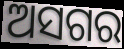
ଅସଗର